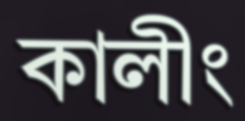
কালীং